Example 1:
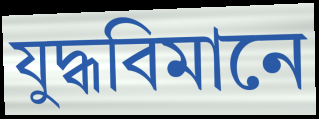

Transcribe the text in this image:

যুদ্ধবিমানে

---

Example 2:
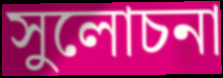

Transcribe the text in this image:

সুলোচনা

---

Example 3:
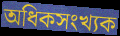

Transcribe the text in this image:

অধিকসংখ্যক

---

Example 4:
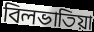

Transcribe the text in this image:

বিলভাতিয়া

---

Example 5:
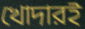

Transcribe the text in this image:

খোদারই